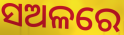
ସଅଳରେ